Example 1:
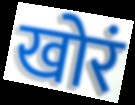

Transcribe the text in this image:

खोरं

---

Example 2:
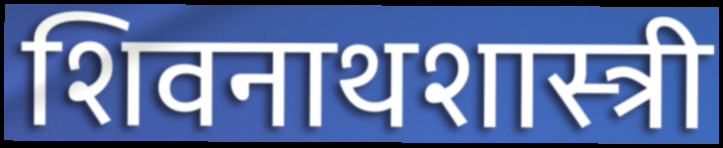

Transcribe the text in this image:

शिवनाथशास्त्री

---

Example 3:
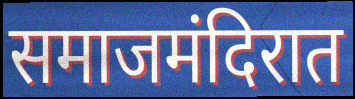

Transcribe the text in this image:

समाजमंदिरात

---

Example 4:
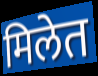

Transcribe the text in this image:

मिलेत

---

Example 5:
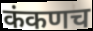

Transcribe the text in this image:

कंकणच